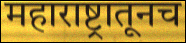
महाराष्ट्रातूनच